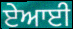
ਏਆਈ